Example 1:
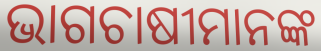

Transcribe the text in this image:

ଭାଗଚାଷୀମାନଙ୍କ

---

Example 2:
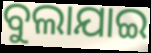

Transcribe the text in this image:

ବୁଲାଯାଇ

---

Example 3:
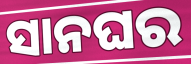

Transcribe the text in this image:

ସାନଘର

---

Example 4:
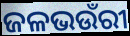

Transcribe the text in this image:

ଜଳଭଉଁରୀ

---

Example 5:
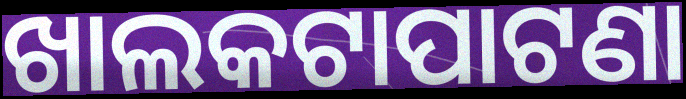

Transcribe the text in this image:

ଖାଲକଟାପାଟଣା